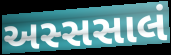
અસ્સસાલં